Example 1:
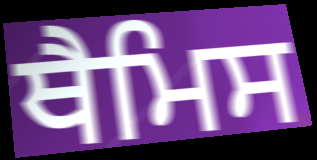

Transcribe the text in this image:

ਥੈਮਿਸ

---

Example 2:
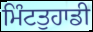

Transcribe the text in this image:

ਮਿੰਟਤੁਹਾਡੀ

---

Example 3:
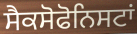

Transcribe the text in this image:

ਸੈਕਸੋਫੋਨਿਸਟਾਂ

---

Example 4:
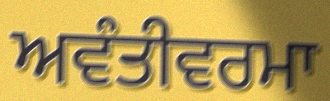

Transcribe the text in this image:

ਅਵੰਤੀਵਰਮਾ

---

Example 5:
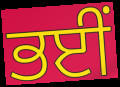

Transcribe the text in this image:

ਭਈਂ